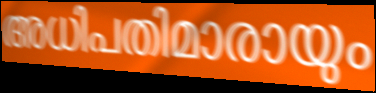
അധിപതിമാരായും